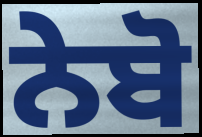
ਨੇਬੋ